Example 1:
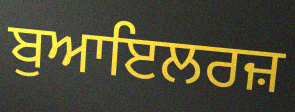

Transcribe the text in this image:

ਬੁਆਇਲਰਜ਼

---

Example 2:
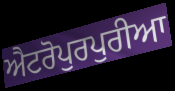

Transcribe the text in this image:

ਐਟਰੋਪੁਰਪੁਰੀਆ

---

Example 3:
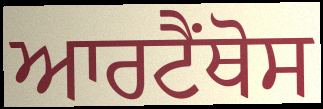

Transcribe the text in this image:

ਆਰਟੈਂਥੋਸ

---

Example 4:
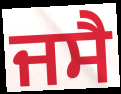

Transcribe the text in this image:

ਜਸੈ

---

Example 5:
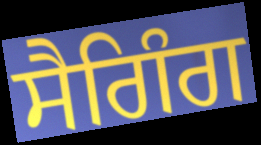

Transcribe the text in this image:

ਸੈਗਿੰਗ